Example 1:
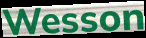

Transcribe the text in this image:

Wesson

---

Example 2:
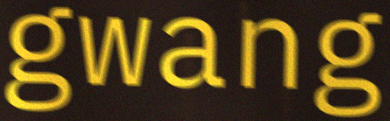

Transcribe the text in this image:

gwang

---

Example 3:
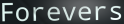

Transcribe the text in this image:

Forevers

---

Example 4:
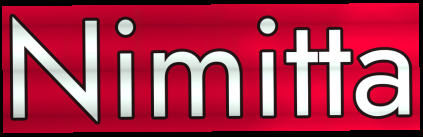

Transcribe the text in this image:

Nimitta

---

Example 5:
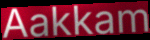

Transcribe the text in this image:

Aakkam